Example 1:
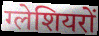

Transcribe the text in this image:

ग्‍लेशियरों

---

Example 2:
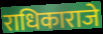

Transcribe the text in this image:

राधिकाराजे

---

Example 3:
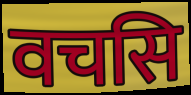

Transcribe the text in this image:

वचसि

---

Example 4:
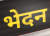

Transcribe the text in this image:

भेदन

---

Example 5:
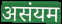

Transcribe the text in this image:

असंयम